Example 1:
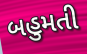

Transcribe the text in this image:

બહુમતી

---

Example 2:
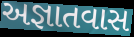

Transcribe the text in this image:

અજ્ઞાતવાસ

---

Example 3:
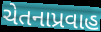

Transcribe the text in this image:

ચેતનાપ્રવાહ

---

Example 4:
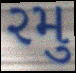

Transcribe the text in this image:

રમુ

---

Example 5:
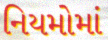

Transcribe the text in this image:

નિયમોમાં